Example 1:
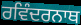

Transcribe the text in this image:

ਰਵਿੰਦਰਨਾਥ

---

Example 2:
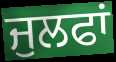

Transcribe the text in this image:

ਜੁਲਫਾਂ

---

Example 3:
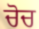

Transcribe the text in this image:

ਚੋਚ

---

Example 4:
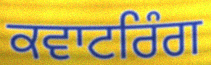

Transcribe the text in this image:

ਕਵਾਟਰਿੰਗ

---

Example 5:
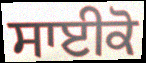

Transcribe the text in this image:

ਸਾਈਕੋ